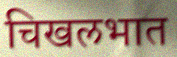
चिखलभात